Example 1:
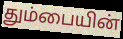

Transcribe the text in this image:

தும்பையின்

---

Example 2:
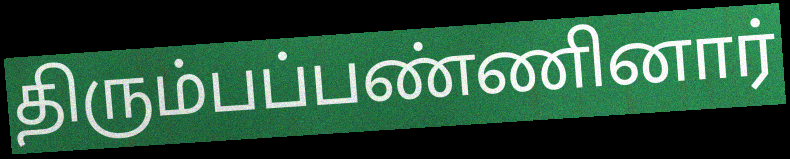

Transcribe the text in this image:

திரும்பப்பண்ணினார்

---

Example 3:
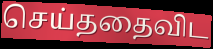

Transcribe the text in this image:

செய்ததைவிட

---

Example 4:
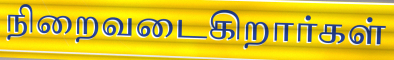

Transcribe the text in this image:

நிறைவடைகிறார்கள்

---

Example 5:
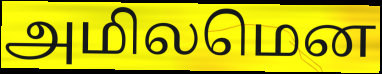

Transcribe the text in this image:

அமிலமென